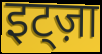
इट्ज़ा